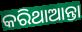
କରିଥାଆନ୍ତା